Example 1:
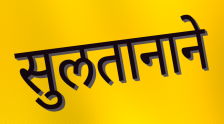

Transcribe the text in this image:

सुलतानाने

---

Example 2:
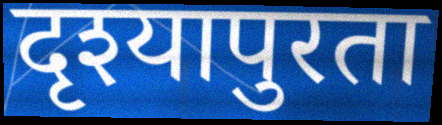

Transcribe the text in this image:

दृश्यापुरता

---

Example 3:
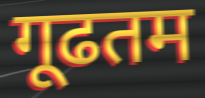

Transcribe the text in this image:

गूढतम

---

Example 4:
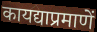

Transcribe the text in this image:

कायद्याप्रमाणें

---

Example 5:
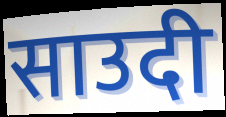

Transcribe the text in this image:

साउदी